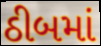
ઠીબમાં